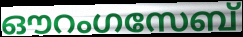
ഔറംഗസേബ്